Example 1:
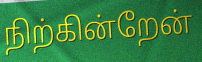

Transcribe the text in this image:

நிற்கின்றேன்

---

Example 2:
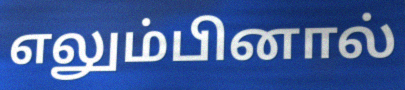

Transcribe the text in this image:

எலும்பினால்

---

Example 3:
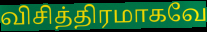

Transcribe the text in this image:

விசித்திரமாகவே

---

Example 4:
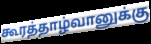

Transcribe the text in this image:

கூரத்தாழ்வானுக்கு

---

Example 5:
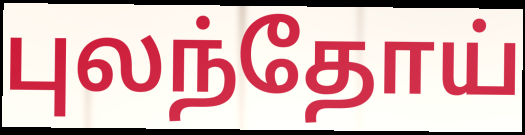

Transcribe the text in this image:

புலந்தோய்